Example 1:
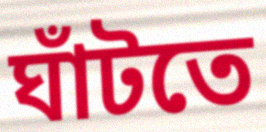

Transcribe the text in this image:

ঘাঁটতে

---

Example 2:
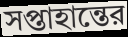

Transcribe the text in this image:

সপ্তাহান্তের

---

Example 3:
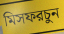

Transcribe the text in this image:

মিসফরচুন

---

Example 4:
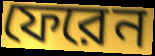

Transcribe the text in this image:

ফেরেন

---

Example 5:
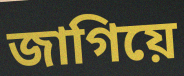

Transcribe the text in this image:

জাগিয়ে